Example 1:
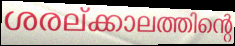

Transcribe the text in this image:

ശരല്ക്കാലത്തിന്റെ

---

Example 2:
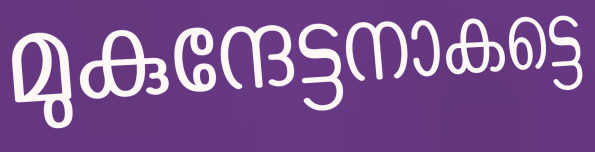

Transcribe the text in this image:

മുകുന്ദേട്ടനാകട്ടെ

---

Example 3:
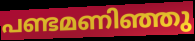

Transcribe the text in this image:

പണ്ടമണിഞ്ഞു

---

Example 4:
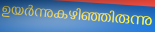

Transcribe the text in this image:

ഉയർന്നുകഴിഞ്ഞിരുന്നു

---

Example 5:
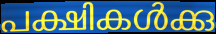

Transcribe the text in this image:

പക്ഷികൾക്കു